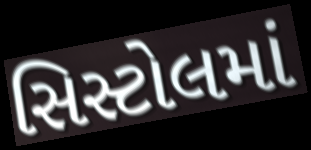
સિસ્ટોલમાં